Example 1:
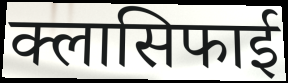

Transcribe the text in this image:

क्लासिफाई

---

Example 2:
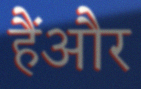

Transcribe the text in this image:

हैंऔर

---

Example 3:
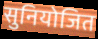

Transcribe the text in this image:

सुनियोजित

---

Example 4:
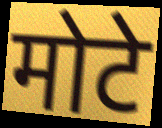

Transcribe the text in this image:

मोटे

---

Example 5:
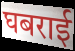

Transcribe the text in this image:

घबराई